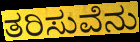
ತರಿಸುವೆನು